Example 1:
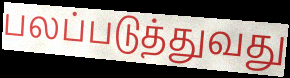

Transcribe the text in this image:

பலப்படுத்துவது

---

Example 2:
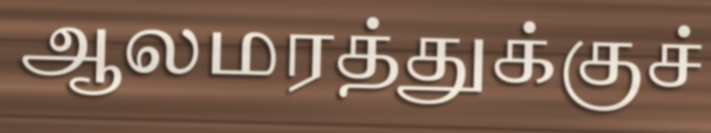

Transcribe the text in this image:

ஆலமரத்துக்குச்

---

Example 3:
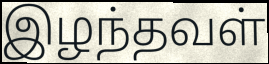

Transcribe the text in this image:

இழந்தவள்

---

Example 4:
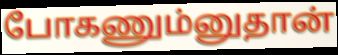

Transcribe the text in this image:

போகணும்னுதான்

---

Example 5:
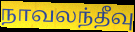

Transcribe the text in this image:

நாவலந்தீவு